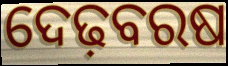
ଦେଢ଼ବରଷ